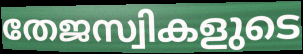
തേജസ്വികളുടെ